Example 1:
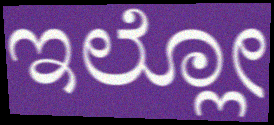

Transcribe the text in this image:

ಇಲ್ಲೋ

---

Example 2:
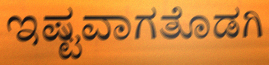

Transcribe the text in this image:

ಇಷ್ಟವಾಗತೊಡಗಿ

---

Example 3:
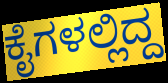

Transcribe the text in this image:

ಕೈಗಳಲ್ಲಿದ್ದ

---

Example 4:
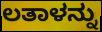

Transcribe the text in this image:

ಲತಾಳನ್ನು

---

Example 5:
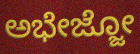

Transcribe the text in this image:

ಅಭೇಜ್ಜೋ